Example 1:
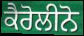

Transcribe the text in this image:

ਕੈਰੋਲੀਨੋ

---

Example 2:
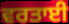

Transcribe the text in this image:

ਵਰਤਾਈ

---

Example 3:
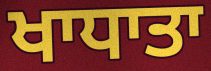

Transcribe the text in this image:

ਖਾਧਾਤਾ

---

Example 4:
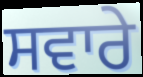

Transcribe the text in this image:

ਸਵਾਰੇ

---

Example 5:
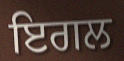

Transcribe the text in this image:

ਇਗਲ